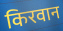
किरवान